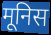
मूनिस